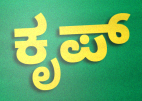
ಕೃಪ್